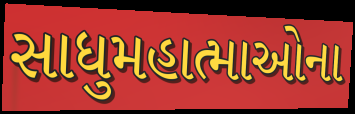
સાધુમહાત્માઓના